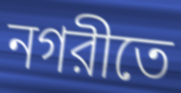
নগরীতে